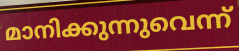
മാനിക്കുന്നുവെന്ന്